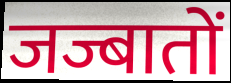
जज्बातों